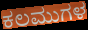
ಕಲಮುಗಳ